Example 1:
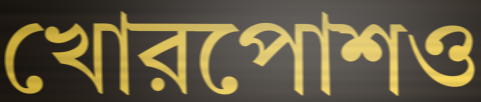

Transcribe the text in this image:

খোরপোশও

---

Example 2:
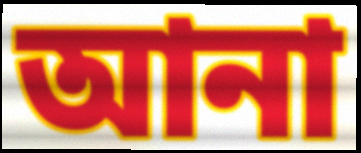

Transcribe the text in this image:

আনা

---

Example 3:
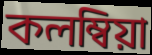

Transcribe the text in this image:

কলম্বিয়া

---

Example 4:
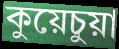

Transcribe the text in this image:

কুয়েচুয়া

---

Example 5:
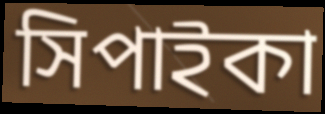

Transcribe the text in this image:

সিপাইকা